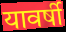
यावर्षी